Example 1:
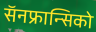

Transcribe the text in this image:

सॅनफ्रान्सिको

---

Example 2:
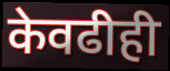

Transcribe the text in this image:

केवढीही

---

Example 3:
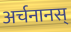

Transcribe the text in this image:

अर्चनानस्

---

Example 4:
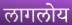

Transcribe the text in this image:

लागलोय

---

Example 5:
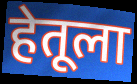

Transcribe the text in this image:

हेतूला